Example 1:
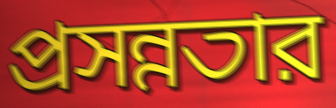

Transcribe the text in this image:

প্রসন্নতার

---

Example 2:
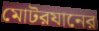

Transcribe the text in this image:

মোটরযানের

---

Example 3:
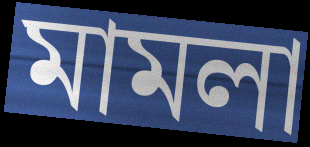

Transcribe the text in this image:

মামলা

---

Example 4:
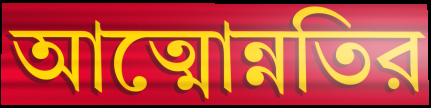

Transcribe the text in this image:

আত্মোন্নতির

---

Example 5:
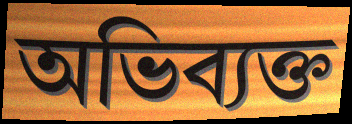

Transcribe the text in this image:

অভিব্যক্ত